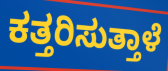
ಕತ್ತರಿಸುತ್ತಾಳೆ